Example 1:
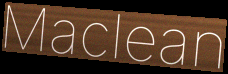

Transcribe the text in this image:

Maclean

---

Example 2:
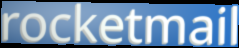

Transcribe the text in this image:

rocketmail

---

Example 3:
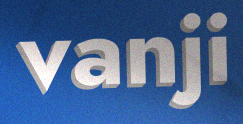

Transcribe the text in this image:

vanji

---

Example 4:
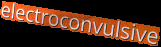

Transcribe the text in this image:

electroconvulsive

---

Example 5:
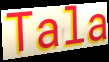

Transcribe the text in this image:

Tala